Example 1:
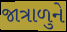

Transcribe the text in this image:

જાત્રાળુને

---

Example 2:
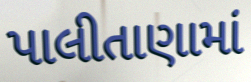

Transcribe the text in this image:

પાલીતાણામાં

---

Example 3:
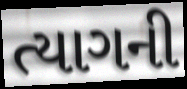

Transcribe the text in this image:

ત્‍યાગની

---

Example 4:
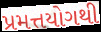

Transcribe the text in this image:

પ્રમત્તયોગથી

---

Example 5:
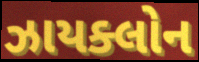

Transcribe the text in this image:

ઝાયક્લોન